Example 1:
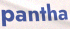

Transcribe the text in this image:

pantha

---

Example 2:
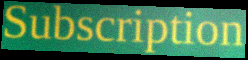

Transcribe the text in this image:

Subscription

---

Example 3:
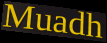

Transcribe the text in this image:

Muadh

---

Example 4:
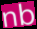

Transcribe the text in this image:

nb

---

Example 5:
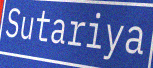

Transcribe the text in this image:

Sutariya